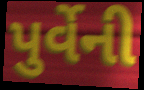
પુર્વેની